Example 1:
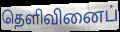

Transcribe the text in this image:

தெளிவினைப்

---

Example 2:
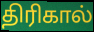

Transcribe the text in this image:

திரிகால்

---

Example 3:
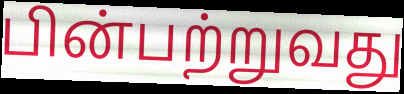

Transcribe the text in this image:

பின்பற்றுவது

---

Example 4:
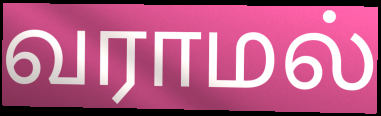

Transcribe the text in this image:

வராமல்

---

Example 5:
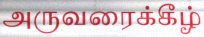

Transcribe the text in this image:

அருவரைக்கீழ்